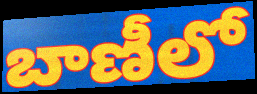
బాణీలో